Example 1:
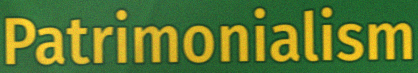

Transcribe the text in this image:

Patrimonialism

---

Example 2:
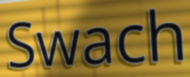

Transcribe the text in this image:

Swach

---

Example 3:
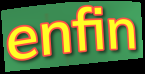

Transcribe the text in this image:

enfin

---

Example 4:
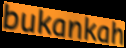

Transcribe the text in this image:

bukankah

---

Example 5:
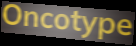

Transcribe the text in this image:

Oncotype